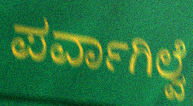
ಪರ್ವಾಗಿಲ್ವೆ